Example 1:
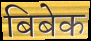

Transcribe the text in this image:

बिबेक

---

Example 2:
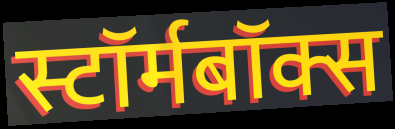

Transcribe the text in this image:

स्टॉर्मबॉक्स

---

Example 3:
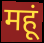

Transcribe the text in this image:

महूं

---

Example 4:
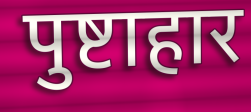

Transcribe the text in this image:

पुष्टाहार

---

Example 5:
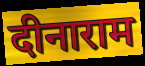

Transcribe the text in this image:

दीनाराम